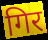
गिर